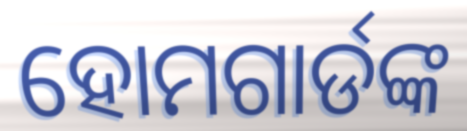
ହୋମଗାର୍ଡଙ୍କ